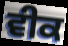
ਵੀਕ